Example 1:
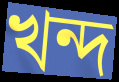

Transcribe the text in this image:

খন্দ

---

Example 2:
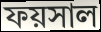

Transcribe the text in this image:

ফয়সাল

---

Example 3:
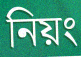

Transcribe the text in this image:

নিয়ং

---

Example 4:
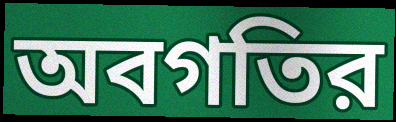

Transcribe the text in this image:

অবগতির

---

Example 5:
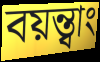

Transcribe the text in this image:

বয়ন্ত্বাং